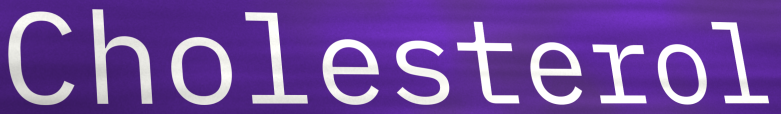
Cholesterol